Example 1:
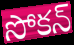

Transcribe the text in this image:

సోకన్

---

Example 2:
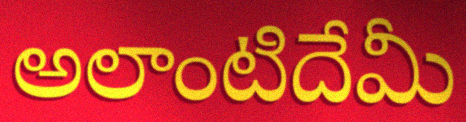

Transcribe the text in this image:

అలాంటిదేమీ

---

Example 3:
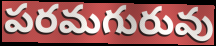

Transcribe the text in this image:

పరమగురువు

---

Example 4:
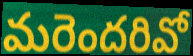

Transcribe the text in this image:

మరెందరివో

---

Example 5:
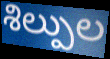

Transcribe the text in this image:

శిల్పుల